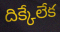
దిక్కేలేక